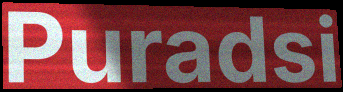
Puradsi